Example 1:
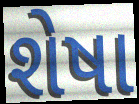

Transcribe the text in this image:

શેષા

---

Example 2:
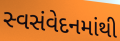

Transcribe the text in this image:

સ્વસંવેદનમાંથી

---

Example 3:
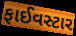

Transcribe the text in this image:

ફાઈવસ્ટાર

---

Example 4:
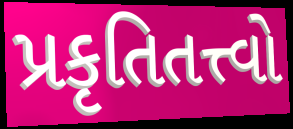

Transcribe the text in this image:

પ્રકૃતિતત્ત્વો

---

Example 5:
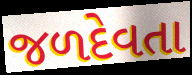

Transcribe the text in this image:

જળદેવતા